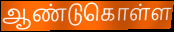
ஆண்டுகொள்ள